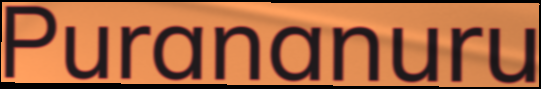
Purananuru